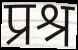
प्रश्र